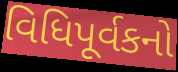
વિધિપૂર્વકનો